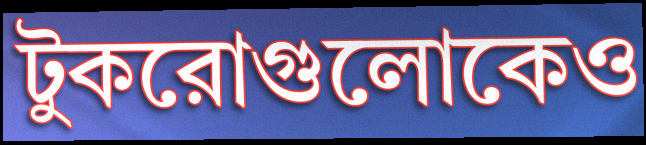
টুকরোগুলোকেও